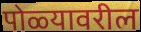
पोळ्यावरील